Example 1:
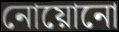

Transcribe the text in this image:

নোয়োনো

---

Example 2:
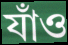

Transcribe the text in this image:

যাঁও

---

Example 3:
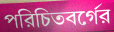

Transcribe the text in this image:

পরিচিতবর্গের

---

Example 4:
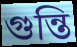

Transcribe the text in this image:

গুন্তি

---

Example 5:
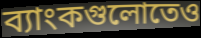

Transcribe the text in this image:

ব্যাংকগুলোতেও